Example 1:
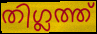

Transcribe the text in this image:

തിഗ്ലത്ത്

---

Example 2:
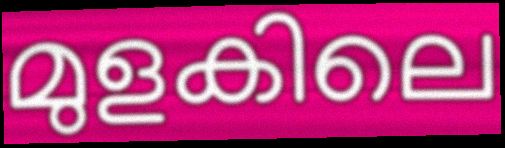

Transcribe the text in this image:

മുളകിലെ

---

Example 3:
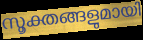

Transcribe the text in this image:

സൂക്തങ്ങളുമായി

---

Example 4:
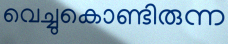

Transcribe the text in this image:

വെച്ചുകൊണ്ടിരുന്ന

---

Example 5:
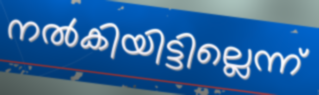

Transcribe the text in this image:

നൽകിയിട്ടില്ലെന്ന്